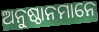
ଅନୁଷ୍ଠାନମାନେ